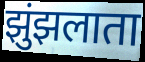
झुंझलाता